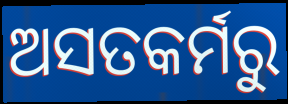
ଅସତକର୍ମରୁ